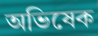
অভিষেক